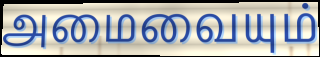
அமைவையும்